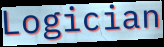
Logician